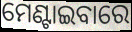
ମେଣ୍ଟାଇବାରେ